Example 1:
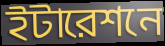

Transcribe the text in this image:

ইটারেশনে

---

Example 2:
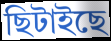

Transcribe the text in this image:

ছিটাইছে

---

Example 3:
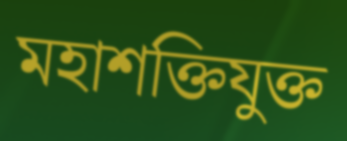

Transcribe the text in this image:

মহাশক্তিযুক্ত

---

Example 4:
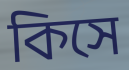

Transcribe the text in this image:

কিসে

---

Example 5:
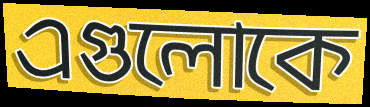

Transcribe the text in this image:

এগুলোকে